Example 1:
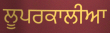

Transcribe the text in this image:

ਲੂਪਰਕਾਲੀਆ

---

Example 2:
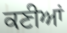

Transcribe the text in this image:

ਕਣੀਆਂ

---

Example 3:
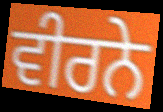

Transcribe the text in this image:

ਵੀਰਨੇ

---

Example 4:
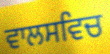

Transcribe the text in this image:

ਵਾਲਸਵਿਚ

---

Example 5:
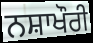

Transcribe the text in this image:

ਨਸ਼ਾਖੌਰੀ